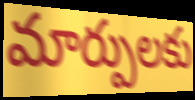
మార్పులకు